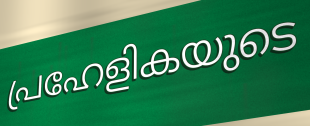
പ്രഹേളികയുടെ